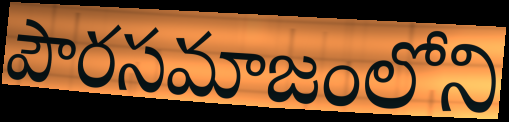
పౌరసమాజంలోని